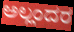
ಅಲ್ಲಂದರ